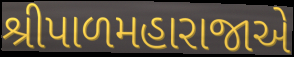
શ્રીપાળમહારાજાએ